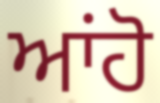
ਆਂਹੋ